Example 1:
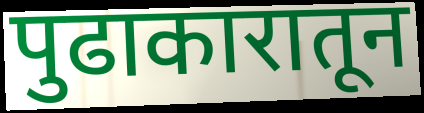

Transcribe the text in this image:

पुढाकारातून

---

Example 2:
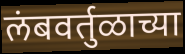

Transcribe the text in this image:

लंबवर्तुळाच्या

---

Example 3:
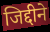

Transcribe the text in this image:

जिद्दीने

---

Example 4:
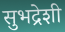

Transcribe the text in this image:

सुभद्रेशी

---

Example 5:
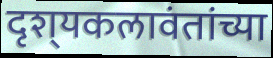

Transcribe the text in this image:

दृश्यकलावंतांच्या